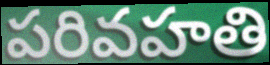
పరివహతి